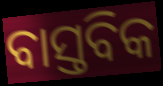
ବାସ୍ତବିକ